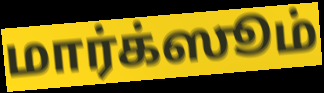
மார்க்ஸூம்